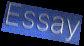
Essay